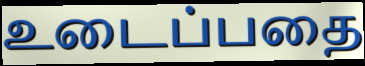
உடைப்பதை